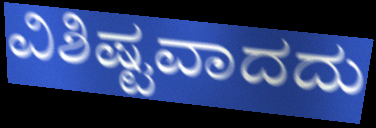
ವಿಶಿಷ್ಟವಾದದು